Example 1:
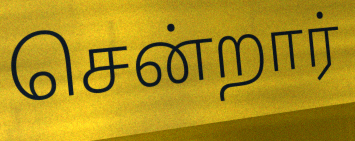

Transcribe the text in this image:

சென்றார்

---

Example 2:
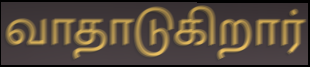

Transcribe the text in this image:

வாதாடுகிறார்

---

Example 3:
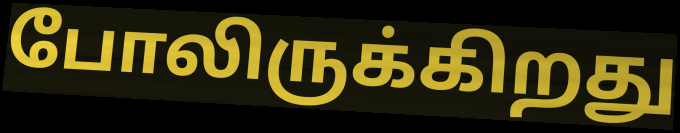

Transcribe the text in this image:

போலிருக்கிறது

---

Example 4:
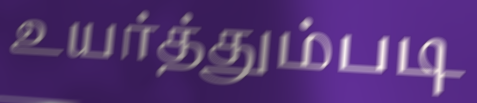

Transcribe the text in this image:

உயர்த்தும்படி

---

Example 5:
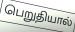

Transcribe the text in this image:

பெறுதியால்